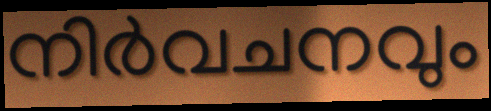
നിർവചനവും